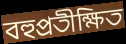
বহুপ্রতীক্ষিত